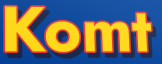
Komt